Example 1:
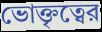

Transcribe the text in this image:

ভোক্তৃত্বের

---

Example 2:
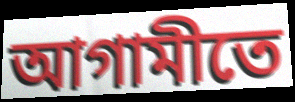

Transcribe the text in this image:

আগামীতে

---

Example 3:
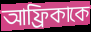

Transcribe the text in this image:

আফ্রিকাকে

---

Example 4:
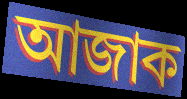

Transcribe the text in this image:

আজাক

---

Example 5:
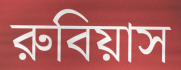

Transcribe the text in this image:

রুবিয়াস